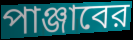
পাঞ্জাবের